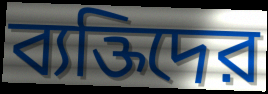
ব্যক্তিদের